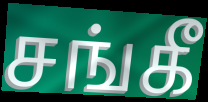
சங்கீ